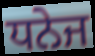
ਧਨੇਜ